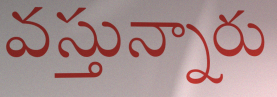
వస్తున్నారు